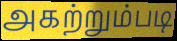
அகற்றும்படி